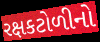
રક્ષકટોળીનો